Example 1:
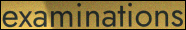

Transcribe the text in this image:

examinations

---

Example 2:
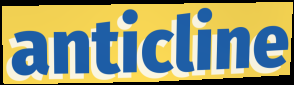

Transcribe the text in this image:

anticline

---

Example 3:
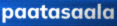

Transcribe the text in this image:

paatasaala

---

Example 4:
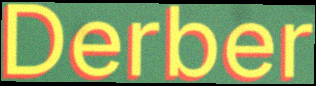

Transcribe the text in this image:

Derber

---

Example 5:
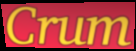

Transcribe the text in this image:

Crum